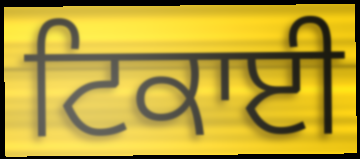
ਟਿਕਾਈ